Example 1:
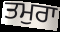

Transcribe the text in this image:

ਤਮੁਰਾ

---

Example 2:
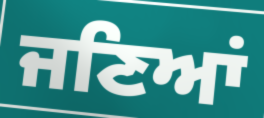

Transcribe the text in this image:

ਜਣਿਆਂ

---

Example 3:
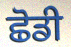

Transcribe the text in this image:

ਛੋਡੀ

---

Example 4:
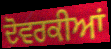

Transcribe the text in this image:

ਦੋਵਰਕੀਆਂ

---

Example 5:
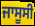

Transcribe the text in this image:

ਜਾਸੂਸੀ